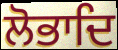
ਲੋਭਾਦਿ